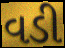
વડી